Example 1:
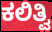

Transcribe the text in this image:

ಕಲಿತ್ವಿ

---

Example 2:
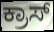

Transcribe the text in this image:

ಕ್ರಾಸ್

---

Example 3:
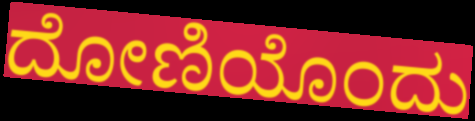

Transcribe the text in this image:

ದೋಣಿಯೊಂದು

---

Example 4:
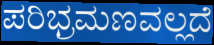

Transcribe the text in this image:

ಪರಿಭ್ರಮಣವಲ್ಲದೆ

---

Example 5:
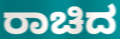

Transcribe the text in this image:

ರಾಚಿದ